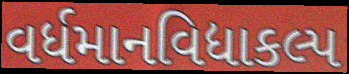
વર્ધમાનવિદ્યાકલ્પ